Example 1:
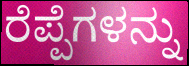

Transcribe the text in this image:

ರೆಪ್ಪೆಗಳನ್ನು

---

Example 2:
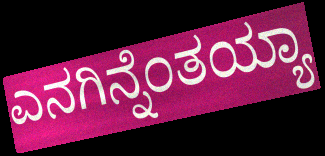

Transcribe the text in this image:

ಎನಗಿನ್ನೆಂತಯ್ಯಾ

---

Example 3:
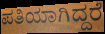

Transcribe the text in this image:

ಪತಿಯಾಗಿದ್ದರೆ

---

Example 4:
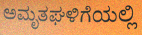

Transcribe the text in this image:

ಅಮೃತಘಳಿಗೆಯಲ್ಲಿ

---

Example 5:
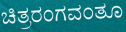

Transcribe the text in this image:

ಚಿತ್ರರಂಗವಂತೂ